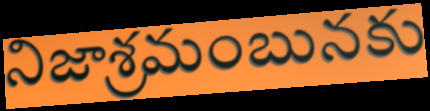
నిజాశ్రమంబునకు